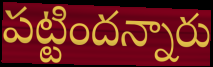
పట్టిందన్నారు